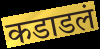
कडाडलं